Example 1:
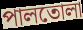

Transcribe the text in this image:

পালতোলা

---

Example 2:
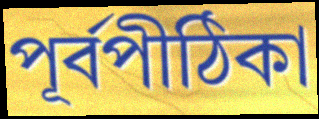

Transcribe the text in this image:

পূর্বপীঠিকা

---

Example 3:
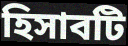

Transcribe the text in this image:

হিসাবটি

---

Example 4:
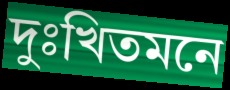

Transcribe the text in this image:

দুঃখিতমনে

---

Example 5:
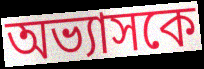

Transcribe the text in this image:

অভ্যাসকে